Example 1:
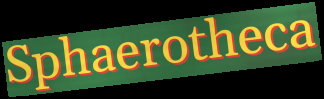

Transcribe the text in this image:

Sphaerotheca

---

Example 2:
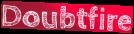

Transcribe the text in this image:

Doubtfire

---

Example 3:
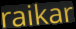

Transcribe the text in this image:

raikar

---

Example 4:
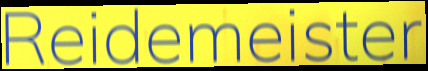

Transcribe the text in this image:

Reidemeister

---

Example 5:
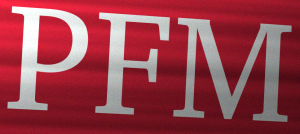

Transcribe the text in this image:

PFM